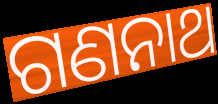
ଗଣନାଥ